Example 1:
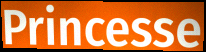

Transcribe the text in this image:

Princesse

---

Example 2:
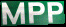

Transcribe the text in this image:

MPP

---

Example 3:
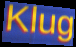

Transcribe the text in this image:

Klug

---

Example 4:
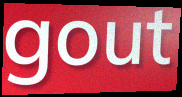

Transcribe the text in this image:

gout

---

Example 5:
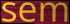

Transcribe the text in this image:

sem